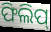
ଫିଲିପ୍